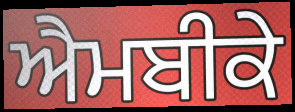
ਐਮਬੀਕੇ